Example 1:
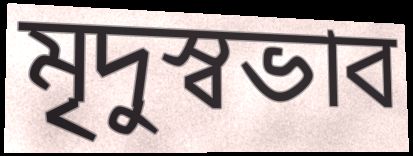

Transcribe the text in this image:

মৃদুস্বভাব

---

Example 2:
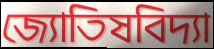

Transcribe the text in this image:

জ্যোতিষবিদ্যা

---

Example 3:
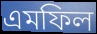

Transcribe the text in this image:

এমফিল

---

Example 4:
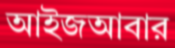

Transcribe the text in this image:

আইজআবার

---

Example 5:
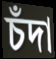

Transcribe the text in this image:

চঁদা